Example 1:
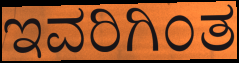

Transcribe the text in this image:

ಇವರಿಗಿಂತ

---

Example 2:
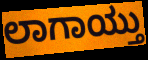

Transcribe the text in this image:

ಲಾಗಾಯ್ತು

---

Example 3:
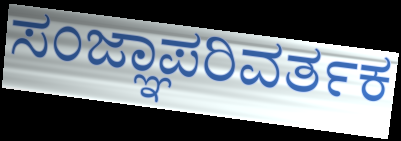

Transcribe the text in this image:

ಸಂಜ್ಞಾಪರಿವರ್ತಕ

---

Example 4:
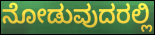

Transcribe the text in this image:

ನೋಡುವುದರಲ್ಲಿ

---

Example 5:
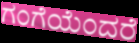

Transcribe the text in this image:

ಗಂಗೆಯೆಂದರೆ